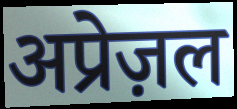
अप्रेज़ल